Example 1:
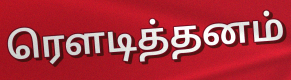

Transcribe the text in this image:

ரௌடித்தனம்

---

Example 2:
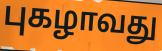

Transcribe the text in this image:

புகழாவது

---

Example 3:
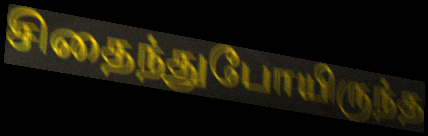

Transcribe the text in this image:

சிதைந்துபோயிருந்த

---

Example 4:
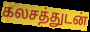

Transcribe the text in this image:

கலசத்துடன்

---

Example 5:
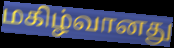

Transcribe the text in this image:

மகிழ்வானது